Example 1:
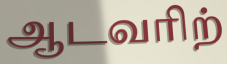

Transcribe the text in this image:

ஆடவரிற்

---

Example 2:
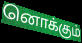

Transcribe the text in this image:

னொக்கும்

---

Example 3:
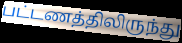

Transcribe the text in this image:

பட்டணத்திலிருந்து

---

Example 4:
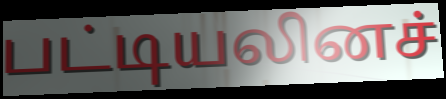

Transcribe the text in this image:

பட்டியலினச்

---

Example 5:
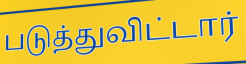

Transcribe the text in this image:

படுத்துவிட்டார்